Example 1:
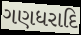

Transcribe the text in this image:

ગણધરાદિ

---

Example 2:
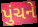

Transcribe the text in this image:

પુંચને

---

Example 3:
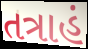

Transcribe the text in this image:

તત્રાહં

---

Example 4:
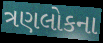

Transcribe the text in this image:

ત્રણલોકના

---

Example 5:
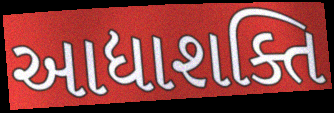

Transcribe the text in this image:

આદ્યાશક્તિ